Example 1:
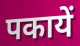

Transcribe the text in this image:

पकायें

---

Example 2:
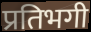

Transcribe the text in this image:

प्रतिभगी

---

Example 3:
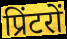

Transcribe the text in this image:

प्रिंटरों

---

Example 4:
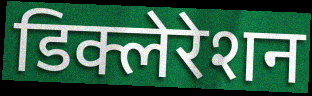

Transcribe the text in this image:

डिक्लेरेशन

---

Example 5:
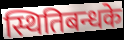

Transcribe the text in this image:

स्थितिबन्धके